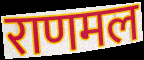
राणमल